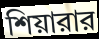
শিয়ারার